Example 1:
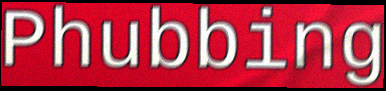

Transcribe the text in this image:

Phubbing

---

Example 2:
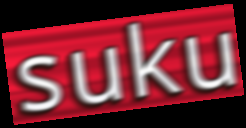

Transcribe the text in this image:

suku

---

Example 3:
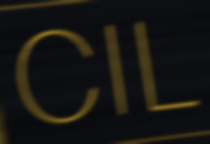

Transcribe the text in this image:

CIL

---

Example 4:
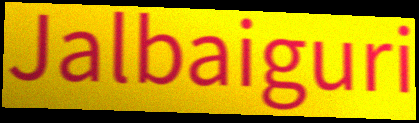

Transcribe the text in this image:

Jalbaiguri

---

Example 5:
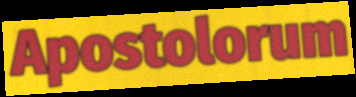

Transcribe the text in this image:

Apostolorum